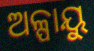
ଅଳ୍ପାୟୁ